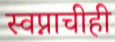
स्वप्नाचीही